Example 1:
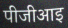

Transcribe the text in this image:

पीजीआइ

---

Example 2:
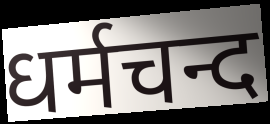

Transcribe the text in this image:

धर्मचन्द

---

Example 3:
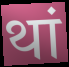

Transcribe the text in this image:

थां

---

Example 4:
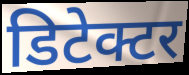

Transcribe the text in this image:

डिटेक्टर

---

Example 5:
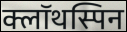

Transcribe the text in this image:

क्लॉथस्पिन